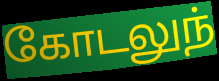
கோடலுந்